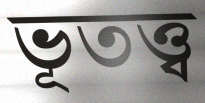
ভূতত্ত্ব